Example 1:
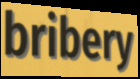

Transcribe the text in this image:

bribery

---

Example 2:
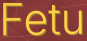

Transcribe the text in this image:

Fetu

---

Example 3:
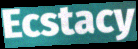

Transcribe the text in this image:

Ecstacy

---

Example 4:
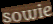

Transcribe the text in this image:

sowie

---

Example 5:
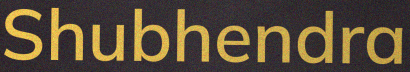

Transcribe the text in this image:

Shubhendra